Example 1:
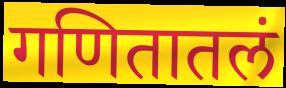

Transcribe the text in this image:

गणितातलं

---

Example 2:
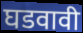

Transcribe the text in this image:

घडवावी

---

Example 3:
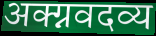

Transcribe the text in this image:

अक्ग्नवदव्य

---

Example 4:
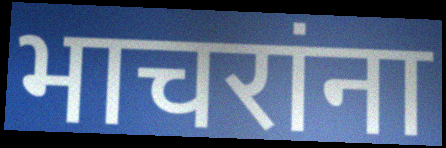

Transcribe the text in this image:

भाचरांना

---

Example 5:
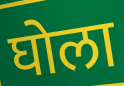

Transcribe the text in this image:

घोला